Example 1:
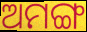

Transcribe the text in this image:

ଅମଙ୍ଗ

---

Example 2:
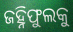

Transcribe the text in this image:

ଜହ୍ନିଫୁଲକୁ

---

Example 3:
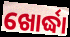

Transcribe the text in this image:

ଖୋର୍ଦ୍ଧା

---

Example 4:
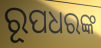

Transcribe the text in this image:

ରୂପଧରଙ୍କ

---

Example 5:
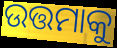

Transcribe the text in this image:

ଉତ୍ତମାକୁ